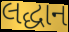
લદ્ધાન